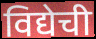
विद्येची